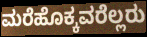
ಮರೆಹೊಕ್ಕವರೆಲ್ಲರು